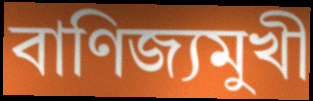
বাণিজ্যমুখী